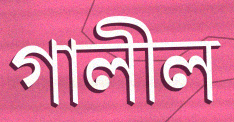
গালীল